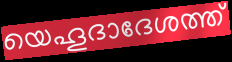
യെഹൂദാദേശത്ത്